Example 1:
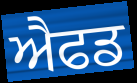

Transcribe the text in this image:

ਐਫਡ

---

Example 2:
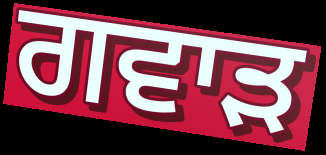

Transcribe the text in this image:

ਗਵਾੜ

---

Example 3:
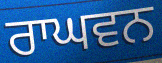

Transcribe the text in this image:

ਰਾਘਵਨ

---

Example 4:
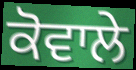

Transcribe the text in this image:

ਕੋਵਾਲੇ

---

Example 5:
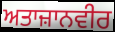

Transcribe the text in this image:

ਅਤਾਜ਼ਾਨਵੀਰ